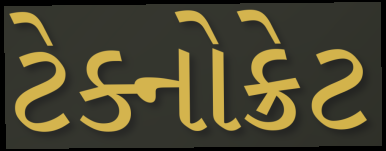
ટેક્નોક્રેટ